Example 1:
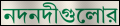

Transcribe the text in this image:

নদনদীগুলোর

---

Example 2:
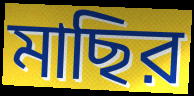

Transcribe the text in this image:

মাছির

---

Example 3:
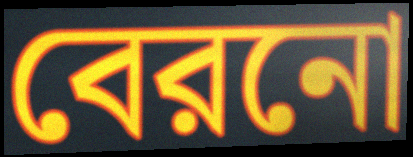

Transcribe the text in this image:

বেরনো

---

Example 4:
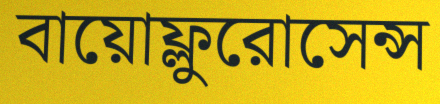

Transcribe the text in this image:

বায়োফ্লুরোসেন্স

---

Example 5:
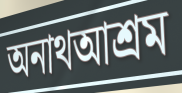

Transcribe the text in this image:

অনাথআশ্রম